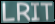
LRIT